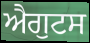
ਐਗੁਟਸ